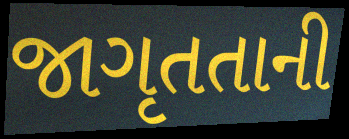
જાગૃતતાની